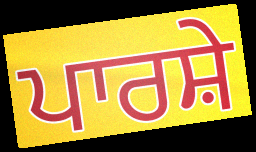
ਪਾਰਸ਼ੇ